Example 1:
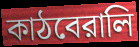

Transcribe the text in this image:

কাঠবেরালি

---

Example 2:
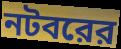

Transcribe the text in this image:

নটবরের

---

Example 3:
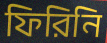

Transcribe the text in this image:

ফিরিনি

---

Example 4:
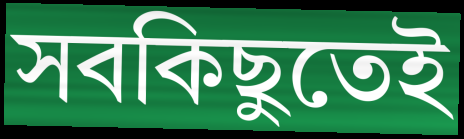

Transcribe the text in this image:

সবকিছুতেই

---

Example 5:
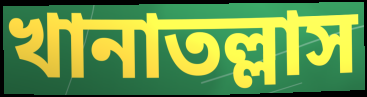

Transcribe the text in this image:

খানাতল্লাস